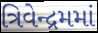
ત્રિવેન્દ્રમમાં